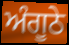
ਅੰਗੂਠੇ